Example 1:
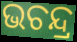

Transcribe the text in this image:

ଭଚନ୍ଦ୍ର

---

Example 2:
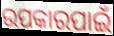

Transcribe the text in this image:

ଉପକାରପାଇଁ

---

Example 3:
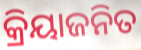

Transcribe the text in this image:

କ୍ରିୟାଜନିତ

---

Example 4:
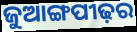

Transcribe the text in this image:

ଜୁଆଙ୍ଗପୀଢ଼ର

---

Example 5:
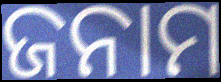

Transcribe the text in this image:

ଜନାମ